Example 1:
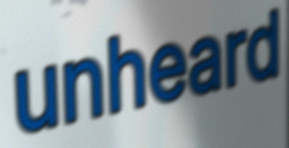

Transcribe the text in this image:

unheard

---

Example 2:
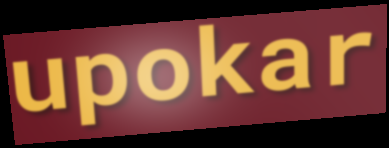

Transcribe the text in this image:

upokar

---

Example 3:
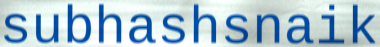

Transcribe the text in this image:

subhashsnaik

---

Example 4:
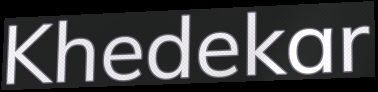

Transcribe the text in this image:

Khedekar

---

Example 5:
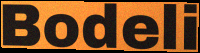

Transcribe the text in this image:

Bodeli